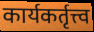
कार्यकर्तृत्त्व